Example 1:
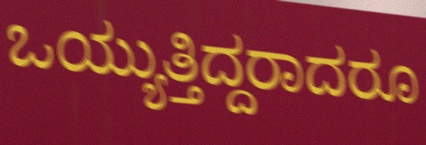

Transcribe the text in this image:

ಒಯ್ಯುತ್ತಿದ್ದರಾದರೂ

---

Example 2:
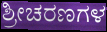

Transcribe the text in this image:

ಶ್ರೀಚರಣಗಳ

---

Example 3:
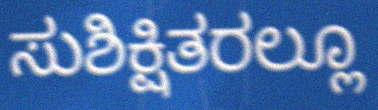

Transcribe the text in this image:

ಸುಶಿಕ್ಷಿತರಲ್ಲೂ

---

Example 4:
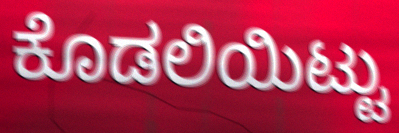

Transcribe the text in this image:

ಕೊಡಲಿಯಿಟ್ಟು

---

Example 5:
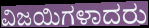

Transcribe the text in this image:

ವಿಜಯಿಗಳಾದರು